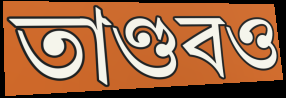
তাণ্ডবও